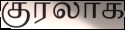
குரலாக